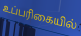
உப்பரிகையில்